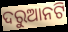
ଦରୁଆନଟି